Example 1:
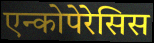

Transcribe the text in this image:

एन्कोपेरेसिस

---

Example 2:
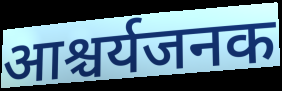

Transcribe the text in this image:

आश्चर्यजनक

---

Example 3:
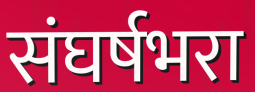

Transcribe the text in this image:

संघर्षभरा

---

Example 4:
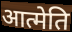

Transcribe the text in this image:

आत्मेति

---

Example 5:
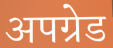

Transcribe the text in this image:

अपग्रेड